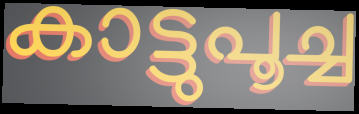
കാട്ടുപൂച്ച